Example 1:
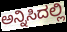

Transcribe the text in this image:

ಅನ್ನಿಸಿದಲ್ಲಿ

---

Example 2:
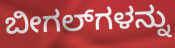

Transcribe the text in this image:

ಬೀಗಲ್‌ಗಳನ್ನು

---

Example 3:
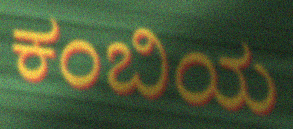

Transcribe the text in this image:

ಕಂಬಿಯ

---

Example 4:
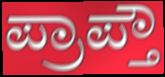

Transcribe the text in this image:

ಪ್ರಾಪ್ತೌ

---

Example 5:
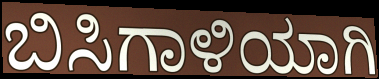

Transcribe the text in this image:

ಬಿಸಿಗಾಳಿಯಾಗಿ